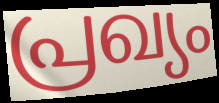
പ്രഖ്യം